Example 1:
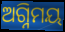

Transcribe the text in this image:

ଅଗ୍ନିମୟ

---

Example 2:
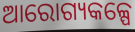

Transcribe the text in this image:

ଆରୋଗ୍ୟକଳ୍ପେ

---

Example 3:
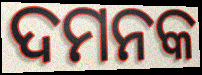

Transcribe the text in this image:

ଦମନକ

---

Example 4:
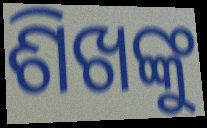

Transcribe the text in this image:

ଶିଖଙ୍କୁ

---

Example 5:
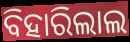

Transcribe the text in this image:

ବିହାରିଲାଲ